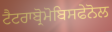
ਟੈਟਰਾਬ੍ਰੋਮੋਬਿਸਫੇਨੋਲ